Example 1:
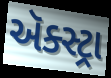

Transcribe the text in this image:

ઍક્સ્ટ્રા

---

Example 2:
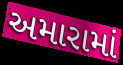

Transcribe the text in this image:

અમારામાં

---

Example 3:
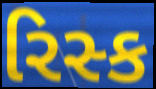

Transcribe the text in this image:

રિસ્ક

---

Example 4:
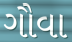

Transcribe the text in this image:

ગૌવા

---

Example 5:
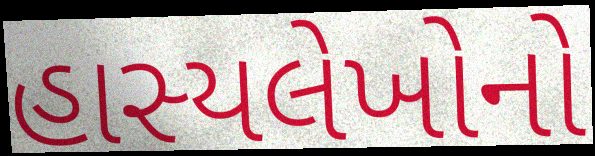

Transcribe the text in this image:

હાસ્યલેખોનો